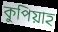
কুপিয়াহ